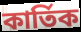
কার্তিক